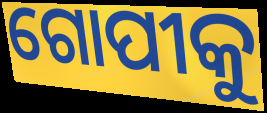
ଗୋପୀକୁ